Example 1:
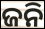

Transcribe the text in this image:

ଜନି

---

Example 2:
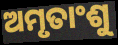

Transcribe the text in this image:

ଅମୃତାଂଶୁ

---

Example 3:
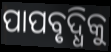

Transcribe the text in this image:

ପାପବୃଦ୍ଧିକୁ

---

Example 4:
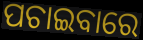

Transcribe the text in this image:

ପଚାଇବାରେ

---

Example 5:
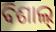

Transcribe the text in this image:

ବିଶାଲ୍